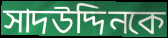
সাদউদ্দিনকে